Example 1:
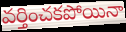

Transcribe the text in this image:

వర్తించకపోయినా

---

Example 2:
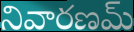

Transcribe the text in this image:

నివారణమ్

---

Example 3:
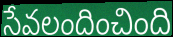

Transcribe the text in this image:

సేవలందించింది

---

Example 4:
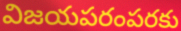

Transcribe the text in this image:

విజయపరంపరకు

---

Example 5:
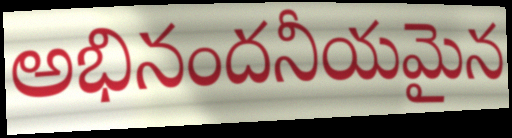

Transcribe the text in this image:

అభినందనీయమైన